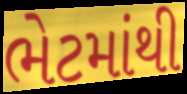
ભેટમાંથી